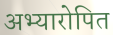
अभ्यारोपित